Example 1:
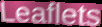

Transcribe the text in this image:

Leaflets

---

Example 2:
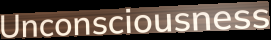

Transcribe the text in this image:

Unconsciousness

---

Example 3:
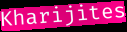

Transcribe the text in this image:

Kharijites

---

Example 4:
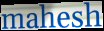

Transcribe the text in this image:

mahesh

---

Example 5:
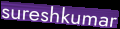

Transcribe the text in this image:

sureshkumar